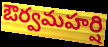
ఔర్వమహర్షి